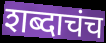
शब्दाचंच